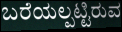
ಬರೆಯಲ್ಪಟ್ಟಿರುವ